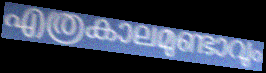
എത്രകാലമുണ്ടാവും